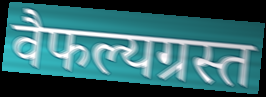
वैफल्यग्रस्त